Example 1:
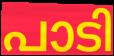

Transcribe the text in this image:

പാടി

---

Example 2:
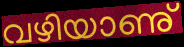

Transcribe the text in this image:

വഴിയാണു്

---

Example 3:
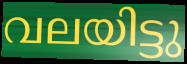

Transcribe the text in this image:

വലയിട്ടു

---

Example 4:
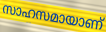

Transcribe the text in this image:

സാഹസമായാണ്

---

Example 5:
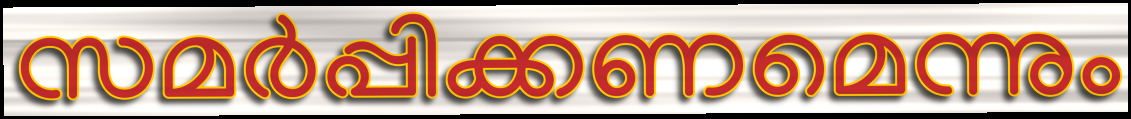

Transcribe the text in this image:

സമർപ്പിക്കണമെന്നും